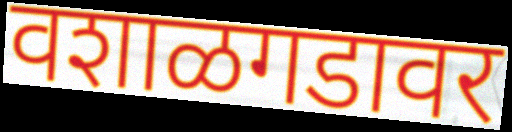
वशाळगडावर